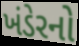
ખંડેરનો